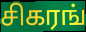
சிகரங்